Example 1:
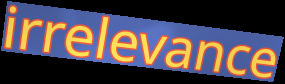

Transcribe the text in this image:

irrelevance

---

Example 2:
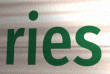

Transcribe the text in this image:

ries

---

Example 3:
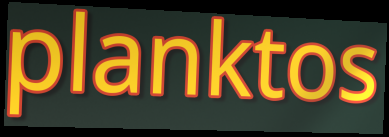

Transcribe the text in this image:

planktos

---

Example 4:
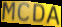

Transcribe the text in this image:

MCDA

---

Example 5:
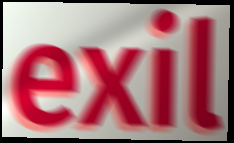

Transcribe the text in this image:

exil